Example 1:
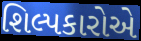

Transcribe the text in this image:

શિલ્પકારોએ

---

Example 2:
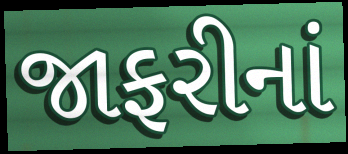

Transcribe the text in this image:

જાફરીનાં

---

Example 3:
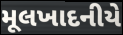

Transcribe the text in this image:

મૂલખાદનીયે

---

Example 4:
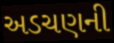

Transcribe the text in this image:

અડચણની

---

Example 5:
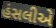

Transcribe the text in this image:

હંસલીએ